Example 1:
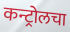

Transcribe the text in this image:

कन्ट्रोलचा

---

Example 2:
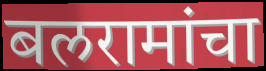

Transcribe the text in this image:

बलरामांचा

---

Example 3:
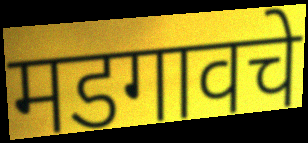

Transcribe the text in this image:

मडगावचे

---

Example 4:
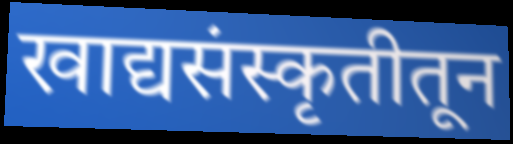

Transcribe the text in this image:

खाद्यसंस्कृतीतून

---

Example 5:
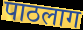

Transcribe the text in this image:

पाठलाग